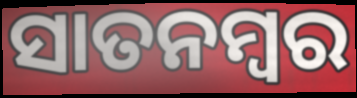
ସାତନମ୍ବର